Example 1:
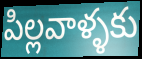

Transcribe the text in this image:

పిల్లవాళ్ళకు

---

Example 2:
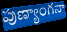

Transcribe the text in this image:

పుణ్యాంగనా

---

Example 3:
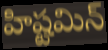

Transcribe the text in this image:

హిష్టమిన్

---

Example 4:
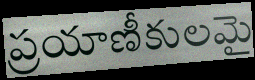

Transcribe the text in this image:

ప్రయాణీకులమై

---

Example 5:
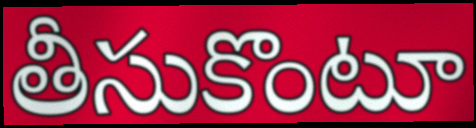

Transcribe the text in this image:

తీసుకొంటూ